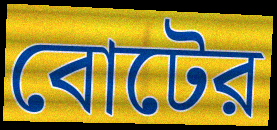
বোটের